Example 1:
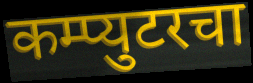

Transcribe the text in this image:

कम्प्युटरचा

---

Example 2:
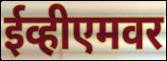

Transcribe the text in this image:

ईव्हीएमवर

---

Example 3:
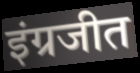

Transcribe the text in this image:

इंग्रजीत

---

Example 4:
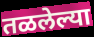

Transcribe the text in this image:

तळलेल्या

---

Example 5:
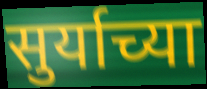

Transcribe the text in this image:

सुर्याच्या